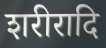
शरीरादि